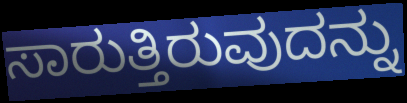
ಸಾರುತ್ತಿರುವುದನ್ನು